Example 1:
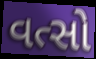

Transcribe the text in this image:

વત્સો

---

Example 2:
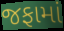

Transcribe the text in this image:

જફામાં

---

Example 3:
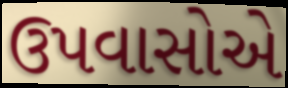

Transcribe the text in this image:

ઉપવાસોએ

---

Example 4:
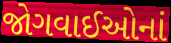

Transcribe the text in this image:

જોગવાઈઓનાં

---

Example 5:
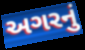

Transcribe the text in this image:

અગરનું